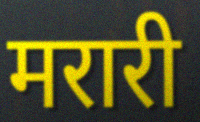
मरारी